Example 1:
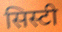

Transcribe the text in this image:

सिस्टी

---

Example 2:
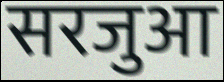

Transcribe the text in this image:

सरजुआ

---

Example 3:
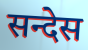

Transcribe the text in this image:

सन्देस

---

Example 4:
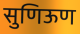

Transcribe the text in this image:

सुणिऊण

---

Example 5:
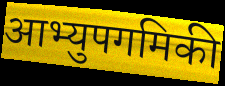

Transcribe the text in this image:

आभ्युपगमिकी